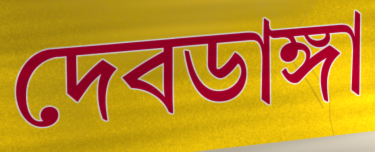
দেবডাঙ্গা